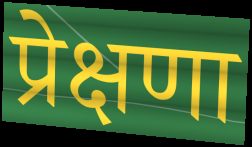
प्रेक्षणा